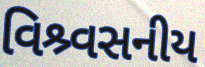
વિશ્ર્વસનીય